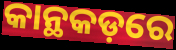
କାନ୍ଥକଡ଼ରେ